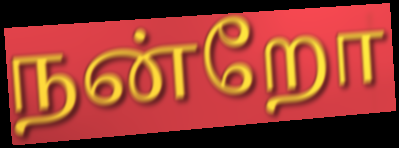
நன்றோ